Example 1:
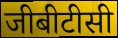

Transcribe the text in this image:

जीबीटीसी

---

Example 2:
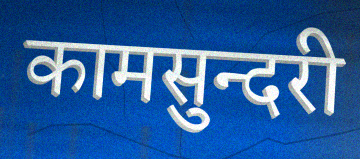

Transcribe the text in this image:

कामसुन्दरी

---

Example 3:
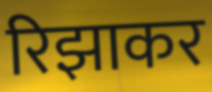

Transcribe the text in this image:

रिझाकर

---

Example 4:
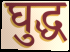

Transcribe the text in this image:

घुद्ध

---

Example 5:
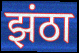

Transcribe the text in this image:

झंठा